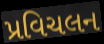
પ્રવિચલન